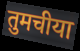
तुमचीया